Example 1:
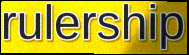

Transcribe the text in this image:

rulership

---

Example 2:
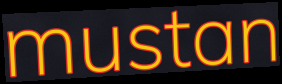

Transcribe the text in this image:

mustan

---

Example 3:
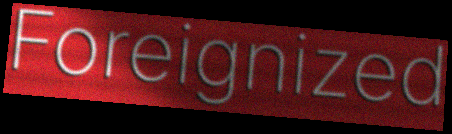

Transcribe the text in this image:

Foreignized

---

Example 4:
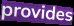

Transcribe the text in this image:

provides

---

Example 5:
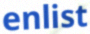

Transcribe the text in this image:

enlist